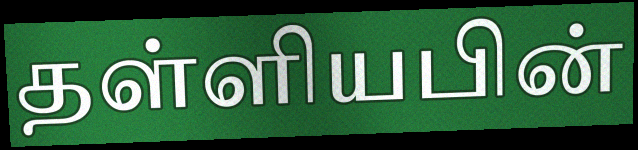
தள்ளியபின்